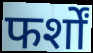
फर्शों